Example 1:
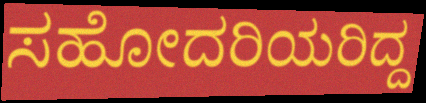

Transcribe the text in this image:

ಸಹೋದರಿಯರಿದ್ದ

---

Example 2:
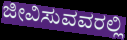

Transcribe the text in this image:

ಜೀವಿಸುವವರಲ್ಲಿ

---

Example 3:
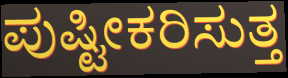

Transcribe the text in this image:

ಪುಷ್ಟೀಕರಿಸುತ್ತ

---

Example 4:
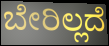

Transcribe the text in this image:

ಬೇರಿಲ್ಲದೆ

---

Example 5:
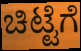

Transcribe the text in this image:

ಚಿಟ್ಟೆಗೆ